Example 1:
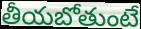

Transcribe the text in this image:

తీయబోతుంటే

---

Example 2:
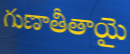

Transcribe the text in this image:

గుణాతీతాయై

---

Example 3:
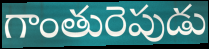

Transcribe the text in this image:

గాంతురెపుడు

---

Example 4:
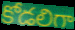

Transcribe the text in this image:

కోడలిగా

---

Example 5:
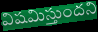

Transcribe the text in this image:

విషమిస్తుందని